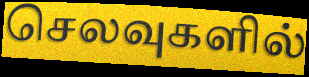
செலவுகளில்